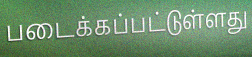
படைக்கப்பட்டுள்ளது